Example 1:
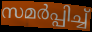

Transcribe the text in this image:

സമർപ്പിച്ച്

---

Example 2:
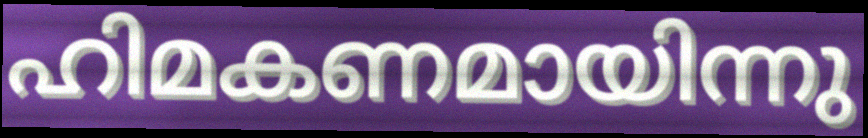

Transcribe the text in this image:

ഹിമകണമായിന്നു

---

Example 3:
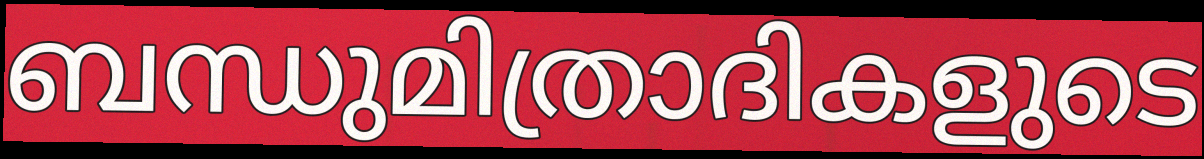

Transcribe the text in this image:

ബന്ധുമിത്രാദികളുടെ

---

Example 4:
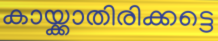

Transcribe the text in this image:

കായ്ക്കാതിരിക്കട്ടെ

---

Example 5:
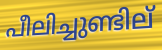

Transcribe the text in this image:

പീലിച്ചുണ്ടില്